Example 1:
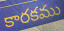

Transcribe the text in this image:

కారకము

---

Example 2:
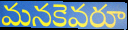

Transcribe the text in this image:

మనకెవరూ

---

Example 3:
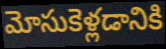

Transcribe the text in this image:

మోసుకెళ్లడానికి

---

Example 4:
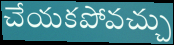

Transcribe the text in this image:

చేయకపోవచ్చు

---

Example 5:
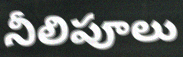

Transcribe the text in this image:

నీలిపూలు